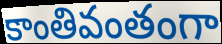
కాంతివంతంగా